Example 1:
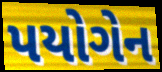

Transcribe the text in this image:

પયોગેન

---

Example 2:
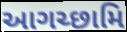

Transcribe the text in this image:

આગચ્છામિ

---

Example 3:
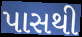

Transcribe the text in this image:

પાસથી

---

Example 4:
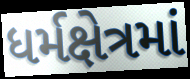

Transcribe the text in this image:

ધર્મક્ષેત્રમાં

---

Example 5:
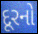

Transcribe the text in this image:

દૂરનો